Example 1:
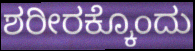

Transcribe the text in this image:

ಶರೀರಕ್ಕೊಂದು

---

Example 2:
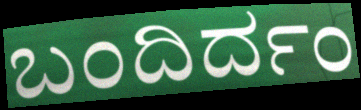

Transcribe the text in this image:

ಬಂದಿರ್ದಂ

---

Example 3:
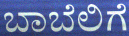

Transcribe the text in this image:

ಬಾಬೆಲಿಗೆ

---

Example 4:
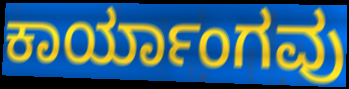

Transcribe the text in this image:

ಕಾರ್ಯಾಂಗವು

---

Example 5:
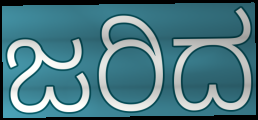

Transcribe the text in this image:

ಜರಿದ